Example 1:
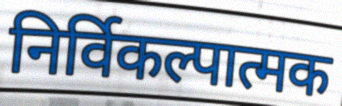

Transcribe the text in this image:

निर्विकल्पात्मक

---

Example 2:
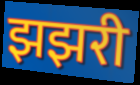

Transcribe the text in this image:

झझरी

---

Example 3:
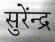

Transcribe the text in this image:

सुरेंन्द्र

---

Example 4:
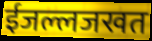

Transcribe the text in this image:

ईजल्लजखत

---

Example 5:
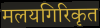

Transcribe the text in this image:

मलयगिरिकृत